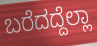
ಬರೆದದ್ದೆಲ್ಲಾ